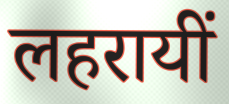
लहरायीं